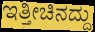
ಇತ್ತೀಚಿನದ್ದು